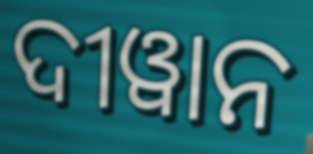
ଦୀୱାନ